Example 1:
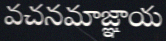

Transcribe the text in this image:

వచనమాజ్ఞాయ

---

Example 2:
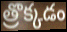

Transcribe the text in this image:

త్రొక్కడం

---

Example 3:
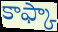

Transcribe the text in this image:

కాఫ్కా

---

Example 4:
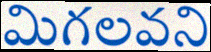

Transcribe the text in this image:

మిగలవని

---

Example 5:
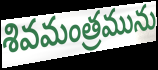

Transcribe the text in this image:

శివమంత్రమును